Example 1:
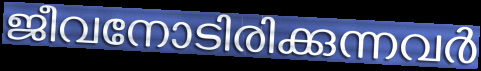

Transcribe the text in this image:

ജീവനോടിരിക്കുന്നവർ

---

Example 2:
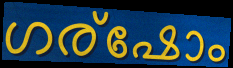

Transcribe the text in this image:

ഗര്ഷോം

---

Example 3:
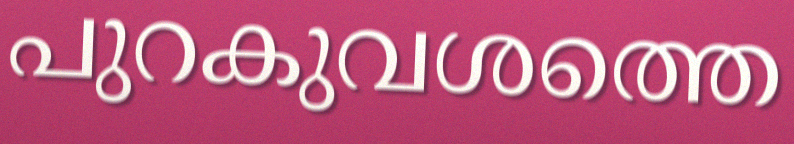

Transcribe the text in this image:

പുറകുവശത്തെ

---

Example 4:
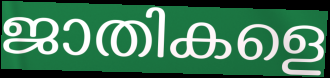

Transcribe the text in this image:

ജാതികളെ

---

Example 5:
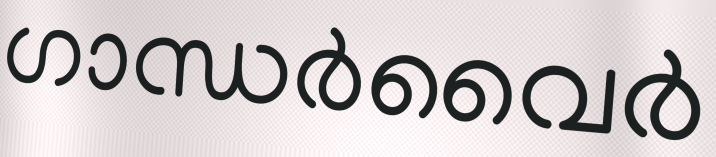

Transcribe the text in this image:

ഗാന്ധർവൈർ